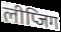
लीप्जिग